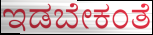
ಇಡಬೇಕಂತೆ